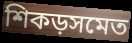
শিকড়সমেত